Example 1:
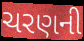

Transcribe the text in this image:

ચરણની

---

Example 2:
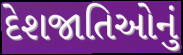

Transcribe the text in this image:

દેશજાતિઓનું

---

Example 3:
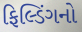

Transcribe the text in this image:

ફિલ્ડિંગનો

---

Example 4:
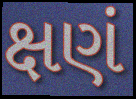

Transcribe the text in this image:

ક્ષણં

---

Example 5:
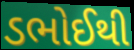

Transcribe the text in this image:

ડભોઈથી